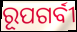
ରୂପଗର୍ବୀ